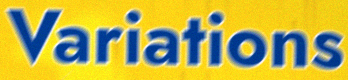
Variations